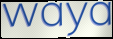
waya